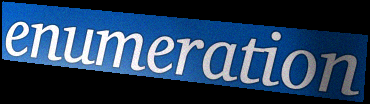
enumeration